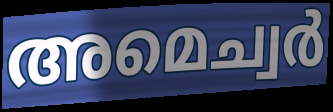
അമെച്വർ